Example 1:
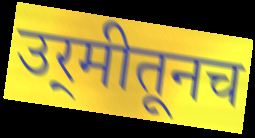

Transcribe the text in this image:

उर्मीतूनच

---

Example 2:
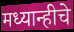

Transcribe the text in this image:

मध्यान्हीचे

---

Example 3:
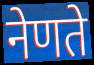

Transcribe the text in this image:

नेणते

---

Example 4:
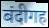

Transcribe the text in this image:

बंदीगह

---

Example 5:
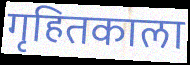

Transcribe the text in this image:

गृहितकाला